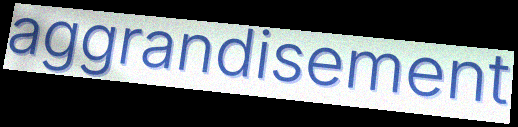
aggrandisement